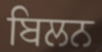
ਬਿਲਨ